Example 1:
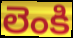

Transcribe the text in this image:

లెంకి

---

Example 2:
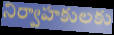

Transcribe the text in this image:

నిర్వాహకులకు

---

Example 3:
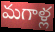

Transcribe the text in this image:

మగాళ్ల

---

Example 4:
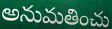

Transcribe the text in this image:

అనుమతించు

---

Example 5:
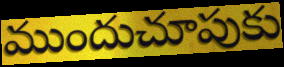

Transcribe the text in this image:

ముందుచూపుకు